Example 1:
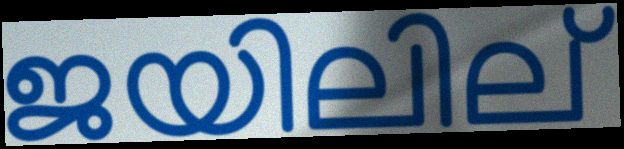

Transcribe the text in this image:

ജയിലില്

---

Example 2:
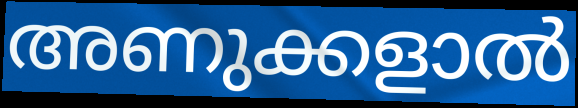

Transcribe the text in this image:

അണുക്കളാൽ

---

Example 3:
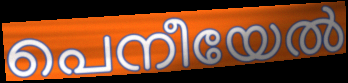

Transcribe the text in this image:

പെനീയേൽ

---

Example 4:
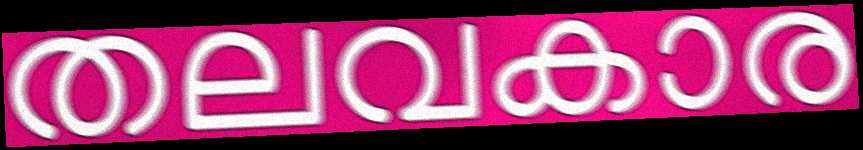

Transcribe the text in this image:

തലവകാര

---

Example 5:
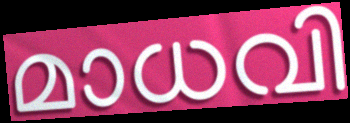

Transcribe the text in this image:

മാധവി